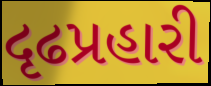
દૃઢપ્રહારી